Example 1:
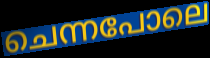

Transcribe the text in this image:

ചെന്നപോലെ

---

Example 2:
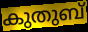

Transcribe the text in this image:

കുതുബ്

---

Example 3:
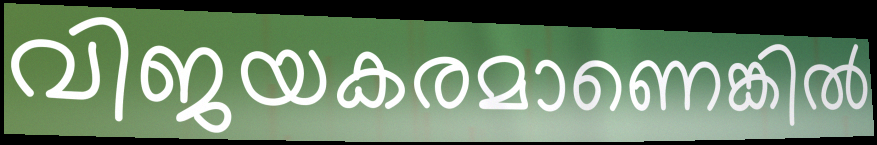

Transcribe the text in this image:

വിജയകരമാണെങ്കിൽ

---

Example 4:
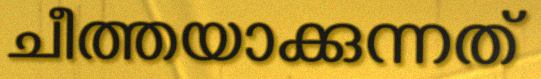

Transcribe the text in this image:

ചീത്തയാക്കുന്നത്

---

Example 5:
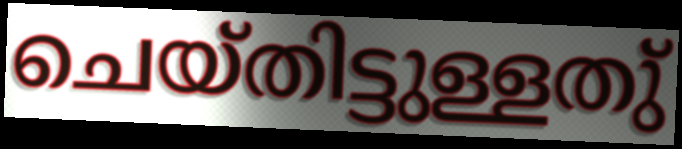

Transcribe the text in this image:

ചെയ്തിട്ടുള്ളതു്